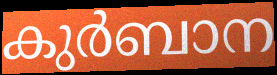
കുർബാന